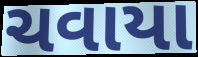
ચવાયા